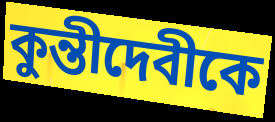
কুন্তীদেবীকে